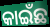
କାଇଁଛ